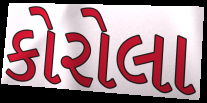
કોરોલા